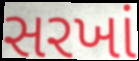
સરખાં